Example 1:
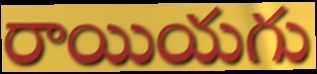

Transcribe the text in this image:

రాయియగు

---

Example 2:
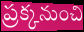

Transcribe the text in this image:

ప్రక్కనుంచి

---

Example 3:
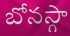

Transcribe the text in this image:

బోనస్గా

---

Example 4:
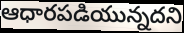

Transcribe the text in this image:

ఆధారపడియున్నదని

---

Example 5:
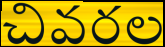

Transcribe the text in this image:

చివరల